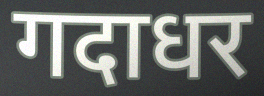
गदाधर